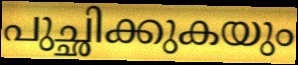
പുച്ഛിക്കുകയും